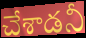
చేశాడనీ